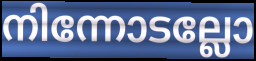
നിന്നോടല്ലോ